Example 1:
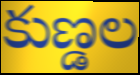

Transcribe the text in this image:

కుణ్డల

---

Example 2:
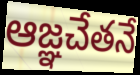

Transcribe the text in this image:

ఆజ్ఞచేతనే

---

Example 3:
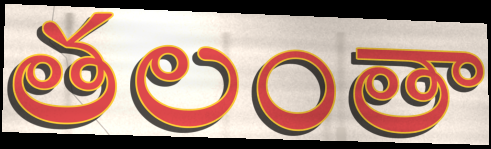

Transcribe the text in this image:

తలంతా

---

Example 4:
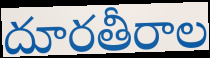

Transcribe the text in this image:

దూరతీరాల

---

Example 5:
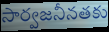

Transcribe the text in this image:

సార్వజనీనతకు